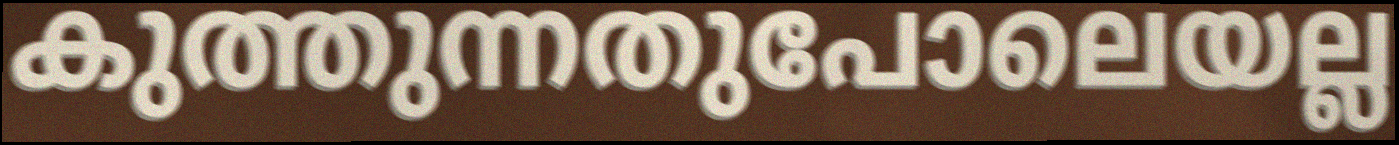
കുത്തുന്നതുപോലെയല്ല